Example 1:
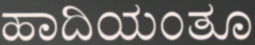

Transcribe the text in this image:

ಹಾದಿಯಂತೂ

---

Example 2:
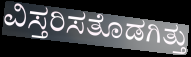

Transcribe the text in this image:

ವಿಸ್ತರಿಸತೊಡಗಿತ್ತು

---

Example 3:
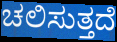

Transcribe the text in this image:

ಚಲಿಸುತ್ತದೆ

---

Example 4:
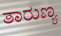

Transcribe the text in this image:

ತಾರುಣ್ಯ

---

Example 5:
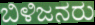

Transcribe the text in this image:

ಬಿಳಿಜನರು